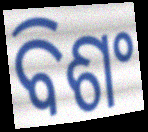
ବିଶଂ